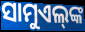
ସାମୁଏଲ୍‌ଙ୍କ